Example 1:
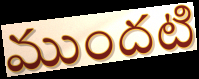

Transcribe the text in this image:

ముందటి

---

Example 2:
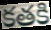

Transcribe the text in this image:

కతకి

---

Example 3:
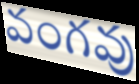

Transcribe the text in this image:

వంగవు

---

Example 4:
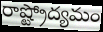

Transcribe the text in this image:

రాష్ట్రోద్యమం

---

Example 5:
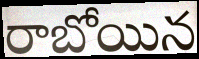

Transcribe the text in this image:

రాబోయిన